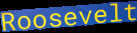
Roosevelt